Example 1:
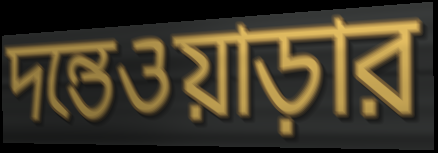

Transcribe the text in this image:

দন্তেওয়াড়ার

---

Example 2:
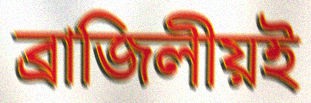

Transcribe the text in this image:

ব্রাজিলীয়ই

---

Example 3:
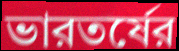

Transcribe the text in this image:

ভারতর্ষের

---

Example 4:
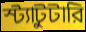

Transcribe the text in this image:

স্ট্যাটুটারি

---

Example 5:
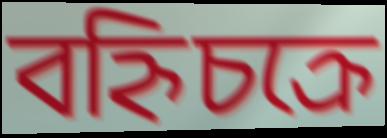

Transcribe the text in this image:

বহ্নিচক্রে